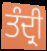
ਤੰਦ੍ਰੀ